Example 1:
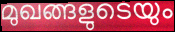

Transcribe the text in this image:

മുഖങ്ങളുടെയും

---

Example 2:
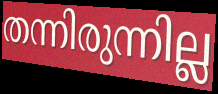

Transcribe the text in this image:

തന്നിരുന്നില്ല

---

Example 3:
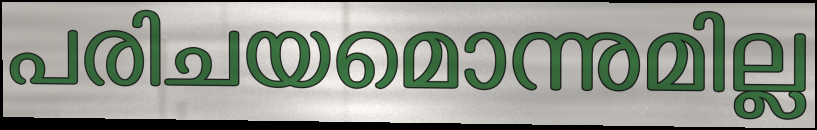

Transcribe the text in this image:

പരിചയമൊന്നുമില്ല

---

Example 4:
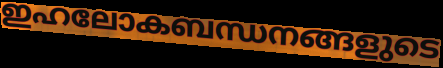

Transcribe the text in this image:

ഇഹലോകബന്ധനങ്ങളുടെ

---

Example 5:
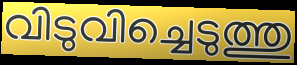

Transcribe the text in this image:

വിടുവിച്ചെടുത്തു